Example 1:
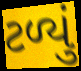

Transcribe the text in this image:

ટળ્યું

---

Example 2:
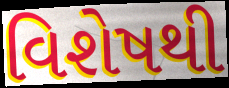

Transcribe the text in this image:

વિશેષથી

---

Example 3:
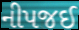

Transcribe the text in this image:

નીપજઈ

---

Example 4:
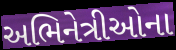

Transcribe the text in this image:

અભિનેત્રીઓના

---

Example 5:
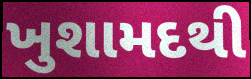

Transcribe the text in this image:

ખુશામદથી